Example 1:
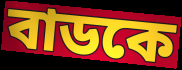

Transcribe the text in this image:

বাডকে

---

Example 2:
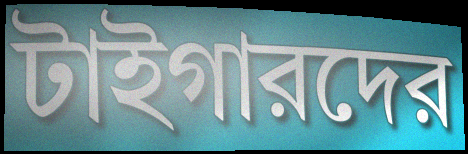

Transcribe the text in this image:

টাইগারদের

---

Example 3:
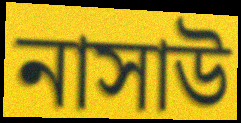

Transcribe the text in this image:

নাসাউ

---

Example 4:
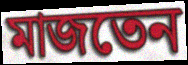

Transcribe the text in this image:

মাজতেন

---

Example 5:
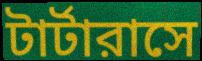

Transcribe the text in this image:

টার্টারাসে